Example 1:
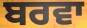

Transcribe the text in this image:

ਬਰਵਾ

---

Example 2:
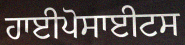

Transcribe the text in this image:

ਹਾਈਪੋਸਾਈਟਸ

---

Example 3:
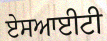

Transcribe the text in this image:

ਏਸਆਈਟੀ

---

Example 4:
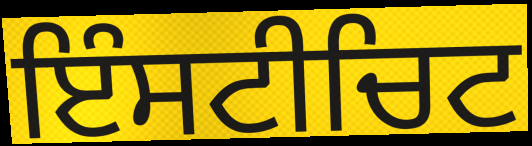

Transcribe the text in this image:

ਇੰਸਟੀਚਿਟ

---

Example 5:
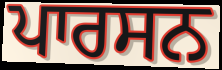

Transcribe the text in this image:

ਪਾਰਸਨ